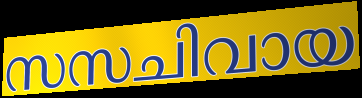
സസചിവായ